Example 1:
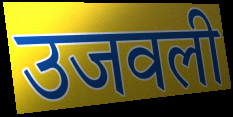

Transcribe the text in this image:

उजवली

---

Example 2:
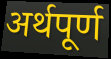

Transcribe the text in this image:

अर्थपूर्ण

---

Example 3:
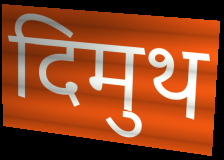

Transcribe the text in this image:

दिमुथ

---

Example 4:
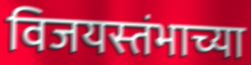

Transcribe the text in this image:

विजयस्तंभाच्या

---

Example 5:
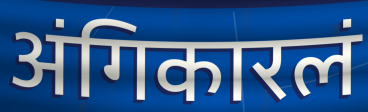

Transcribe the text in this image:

अंगिकारलं